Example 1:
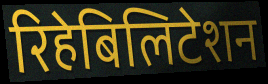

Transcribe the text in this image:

रिहेबिलिटेशन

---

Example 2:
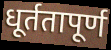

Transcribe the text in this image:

धूर्ततापूर्ण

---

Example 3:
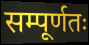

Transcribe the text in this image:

सम्पूर्णतः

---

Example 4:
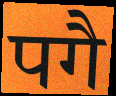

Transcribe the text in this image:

पगै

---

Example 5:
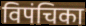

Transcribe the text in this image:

विपंचिका